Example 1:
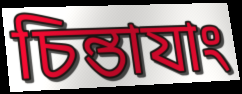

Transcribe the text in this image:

চিন্তাযাং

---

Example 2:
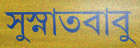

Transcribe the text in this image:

সুস্নাতবাবু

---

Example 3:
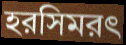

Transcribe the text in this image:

হরসিমরৎ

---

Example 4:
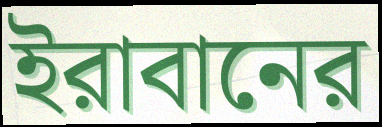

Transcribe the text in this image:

ইরাবানের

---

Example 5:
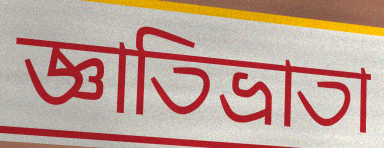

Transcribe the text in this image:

জ্ঞাতিভ্রাতা